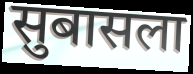
सुबासला